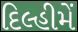
દિલ્હીમેં